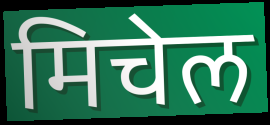
मिचेल